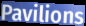
Pavilions